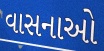
વાસનાઓ